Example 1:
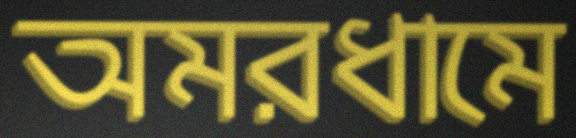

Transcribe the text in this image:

অমরধামে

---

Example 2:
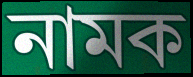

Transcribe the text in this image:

নামক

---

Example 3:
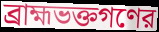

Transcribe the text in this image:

ব্রাহ্মভক্তগণের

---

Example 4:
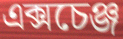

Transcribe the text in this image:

এক্সচেঞ্জ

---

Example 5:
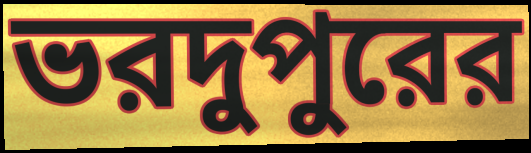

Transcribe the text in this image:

ভরদুপুরের